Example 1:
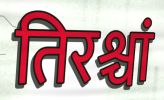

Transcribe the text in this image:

तिरश्चां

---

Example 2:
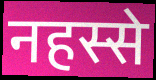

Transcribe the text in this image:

नहस्से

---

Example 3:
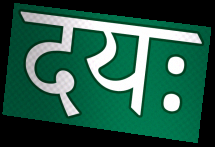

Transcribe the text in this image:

दयः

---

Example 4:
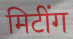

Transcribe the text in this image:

मिटींग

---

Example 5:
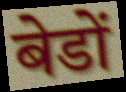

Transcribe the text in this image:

बेडों